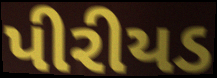
પીરીયડ